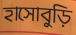
হাসোবুড়ি